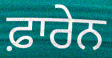
ਫ਼ਾਰੇਨ